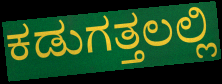
ಕಡುಗತ್ತಲಲ್ಲಿ